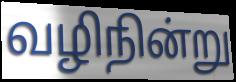
வழிநின்று